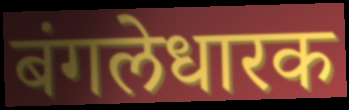
बंगलेधारक